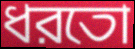
ধরতো